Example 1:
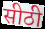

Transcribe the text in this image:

सीठी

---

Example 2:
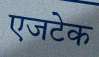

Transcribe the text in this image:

एजटेक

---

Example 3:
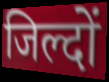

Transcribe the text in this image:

जिल्दों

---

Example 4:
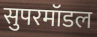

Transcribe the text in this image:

सुपरमॉडल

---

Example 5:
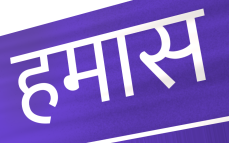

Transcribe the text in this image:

हमास